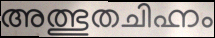
അത്ഭുതചിഹ്നം